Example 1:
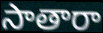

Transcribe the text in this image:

సాతారా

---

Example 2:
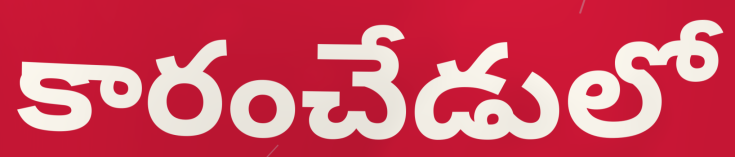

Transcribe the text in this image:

కారంచేడులో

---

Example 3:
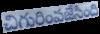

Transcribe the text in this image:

చిగురింపజేసింది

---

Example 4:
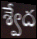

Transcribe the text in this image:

శ్వేద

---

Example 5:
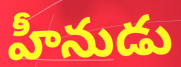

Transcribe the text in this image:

హీనుడు